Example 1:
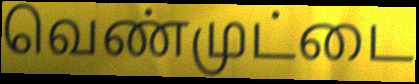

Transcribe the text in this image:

வெண்முட்டை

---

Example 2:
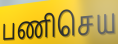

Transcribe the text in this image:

பணிசெய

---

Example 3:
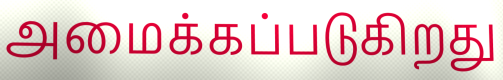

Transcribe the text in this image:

அமைக்கப்படுகிறது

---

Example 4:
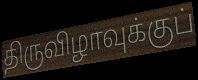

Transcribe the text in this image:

திருவிழாவுக்குப்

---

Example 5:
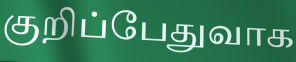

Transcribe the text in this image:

குறிப்பேதுவாக